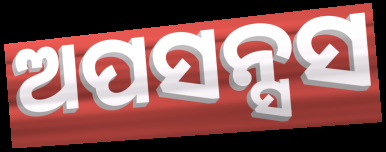
ଅପସନ୍ସସ